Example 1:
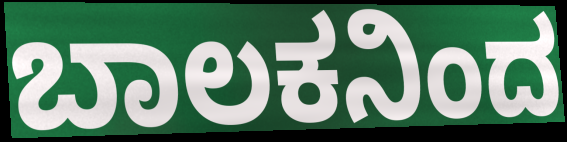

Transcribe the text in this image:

ಬಾಲಕನಿಂದ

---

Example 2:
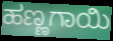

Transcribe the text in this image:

ಹಣ್ಣಗಾಯಿ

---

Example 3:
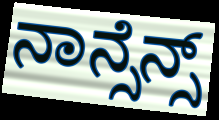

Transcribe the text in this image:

ನಾನ್ಸೆನ್ಸ್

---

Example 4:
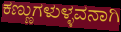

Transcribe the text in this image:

ಕಣ್ಣುಗಳುಳ್ಳವನಾಗಿ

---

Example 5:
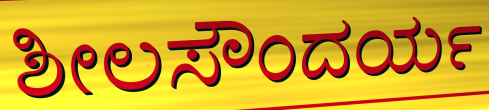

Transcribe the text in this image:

ಶೀಲಸೌಂದರ್ಯ